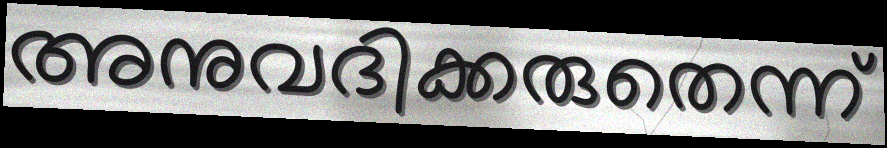
അനുവദിക്കരുതെന്ന്